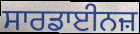
ਸਾਰਡਾਈਨਜ਼